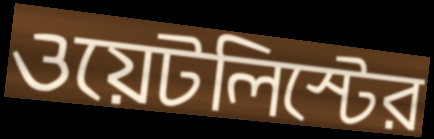
ওয়েটলিস্টের